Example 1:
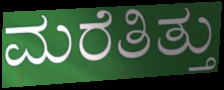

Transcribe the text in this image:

ಮರೆತಿತ್ತು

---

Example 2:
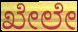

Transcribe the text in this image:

ಖೇಲೇ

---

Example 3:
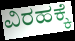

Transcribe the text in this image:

ವಿರಹಕ್ಕೆ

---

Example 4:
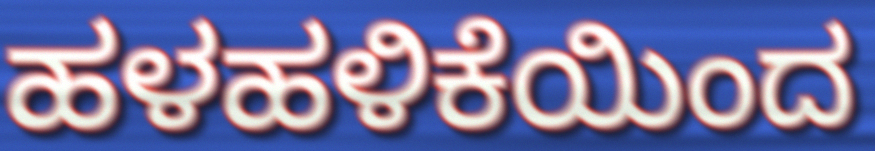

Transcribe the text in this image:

ಹಳಹಳಿಕೆಯಿಂದ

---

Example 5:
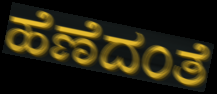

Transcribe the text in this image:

ಹೆಣೆದಂತೆ